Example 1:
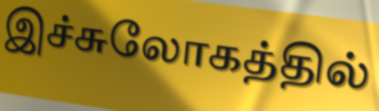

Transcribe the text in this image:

இச்சுலோகத்தில்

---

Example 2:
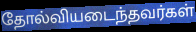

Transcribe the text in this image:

தோல்வியடைந்தவர்கள்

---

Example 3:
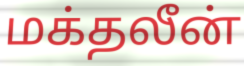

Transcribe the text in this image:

மக்தலீன்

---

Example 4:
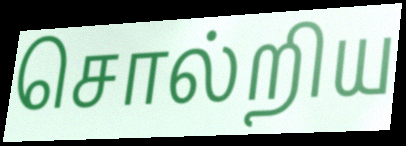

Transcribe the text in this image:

சொல்றிய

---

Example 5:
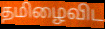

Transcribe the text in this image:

தமிழைவிட